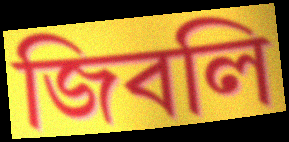
জিবলি